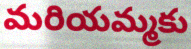
మరియమ్మకు